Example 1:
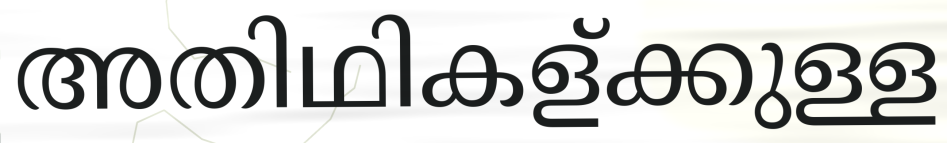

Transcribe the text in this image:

അതിഥികള്ക്കുള്ള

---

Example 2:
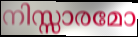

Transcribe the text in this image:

നിസ്സാരമോ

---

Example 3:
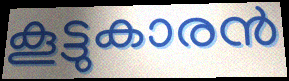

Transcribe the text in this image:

കൂട്ടുകാരൻ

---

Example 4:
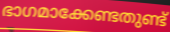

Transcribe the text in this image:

ഭാഗമാക്കേണ്ടതുണ്ട്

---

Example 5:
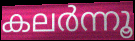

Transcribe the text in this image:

കലർന്നൂ